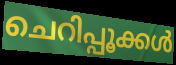
ചെറിപ്പൂക്കൾ